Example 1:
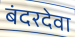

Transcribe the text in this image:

बंदरदेवा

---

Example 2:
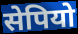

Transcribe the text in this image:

सेपियो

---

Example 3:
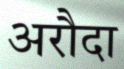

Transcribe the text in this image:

अरौदा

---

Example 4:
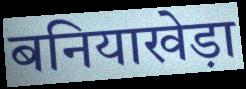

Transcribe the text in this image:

बनियाखेड़ा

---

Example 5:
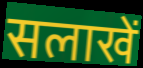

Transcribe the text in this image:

सलाखें